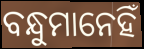
ବନ୍ଧୁମାନେହିଁ